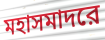
মহাসমাদরে